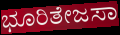
ಭೂರಿತೇಜಸಾ